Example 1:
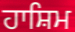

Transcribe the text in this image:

ਹਾਸ਼ਿਮ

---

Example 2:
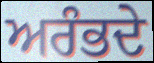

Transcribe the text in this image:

ਅਰੰਭਦੇ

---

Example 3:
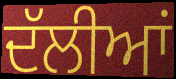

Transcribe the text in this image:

ਦੱਲੀਆਂ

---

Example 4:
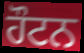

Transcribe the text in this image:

ਹੌਟਨ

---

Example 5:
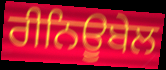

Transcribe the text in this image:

ਰੀਨਿਊਬੇਲ